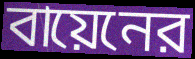
বায়েনের